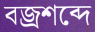
বজ্রশব্দে